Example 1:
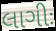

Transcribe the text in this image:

લાગીઃ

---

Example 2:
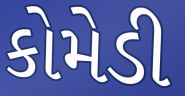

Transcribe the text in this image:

કોમેડી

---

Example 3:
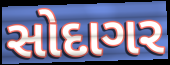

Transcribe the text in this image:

સોદાગર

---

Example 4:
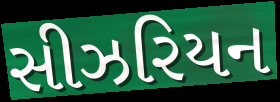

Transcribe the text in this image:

સીઝરિયન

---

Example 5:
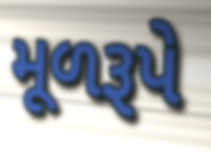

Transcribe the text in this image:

મૂળરૂપે